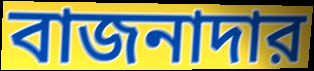
বাজনাদার